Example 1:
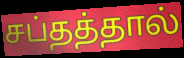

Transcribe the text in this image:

சப்தத்தால்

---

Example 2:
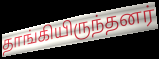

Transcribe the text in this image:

தாங்கியிருந்தனர்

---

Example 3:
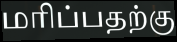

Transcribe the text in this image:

மரிப்பதற்கு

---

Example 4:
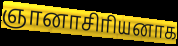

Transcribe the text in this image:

ஞானாசிரியனாக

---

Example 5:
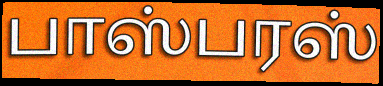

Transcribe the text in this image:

பாஸ்பரஸ்